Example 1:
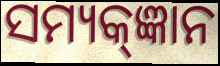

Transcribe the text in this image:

ସମ୍ୟକ୍‌ଜ୍ଞାନ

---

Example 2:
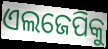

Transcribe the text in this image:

ଏଲଜେପିକୁ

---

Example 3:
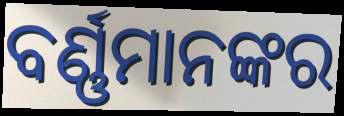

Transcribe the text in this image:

ବର୍ଣ୍ଣମାନଙ୍କର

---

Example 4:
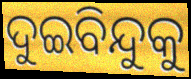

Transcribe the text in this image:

ଦୁଇବିନ୍ଦୁକୁ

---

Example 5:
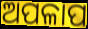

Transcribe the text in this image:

ଅପଳାପ